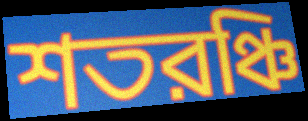
শতরঞ্চি